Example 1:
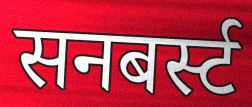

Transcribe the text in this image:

सनबर्स्ट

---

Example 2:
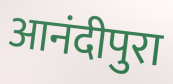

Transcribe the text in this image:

आनंदीपुरा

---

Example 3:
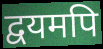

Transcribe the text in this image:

द्वयमपि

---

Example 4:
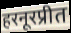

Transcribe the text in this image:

हरनूरप्रीत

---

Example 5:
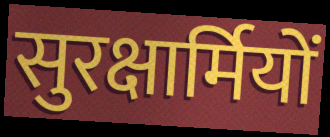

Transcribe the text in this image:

सुरक्षार्मियों